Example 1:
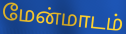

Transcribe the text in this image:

மேன்மாடம்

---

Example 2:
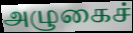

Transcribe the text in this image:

அழுகைச்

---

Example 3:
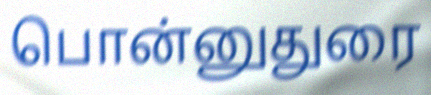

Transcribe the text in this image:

பொன்னுதுரை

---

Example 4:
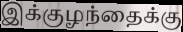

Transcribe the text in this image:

இக்குழந்தைக்கு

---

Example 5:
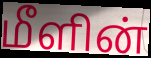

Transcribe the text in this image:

மீளின்